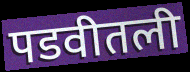
पडवीतली